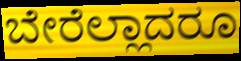
ಬೇರೆಲ್ಲಾದರೂ